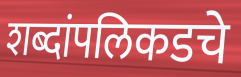
शब्दांपलिकडचे